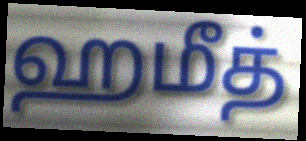
ஹமீத்